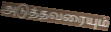
அடுத்தவரையும்